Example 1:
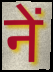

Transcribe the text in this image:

नें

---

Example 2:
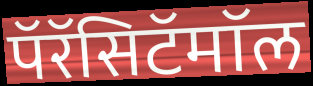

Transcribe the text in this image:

पॅरॅसिटॅमॉल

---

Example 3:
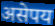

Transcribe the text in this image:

असेपय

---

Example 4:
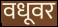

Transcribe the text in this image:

वधूवर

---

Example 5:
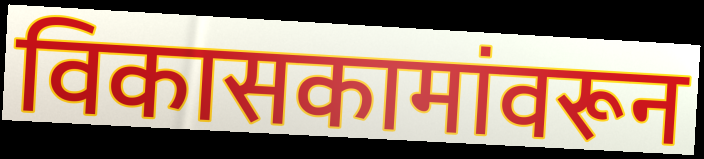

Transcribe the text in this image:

विकासकामांवरून